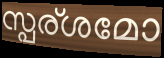
സ്പര്ശമോ